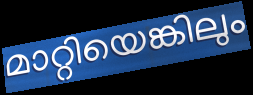
മാറ്റിയെങ്കിലും